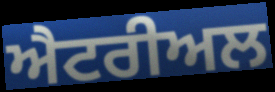
ਐਟਰੀਅਲ